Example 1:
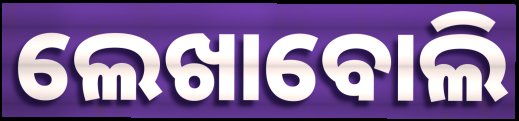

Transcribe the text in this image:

ଲେଖାବୋଲି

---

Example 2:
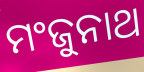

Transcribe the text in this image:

ମଂଜୁନାଥ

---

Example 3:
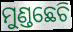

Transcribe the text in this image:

ମୁଣ୍ଡଛେଚି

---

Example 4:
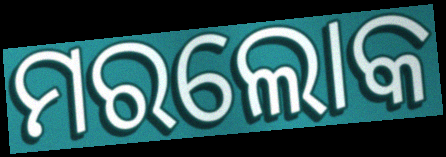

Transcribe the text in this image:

ମରଲୋକ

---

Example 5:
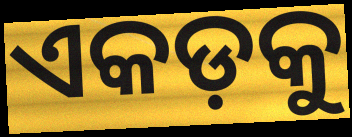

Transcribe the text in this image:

ଏକଡ଼କୁ